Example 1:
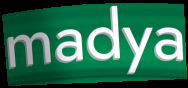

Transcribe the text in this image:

madya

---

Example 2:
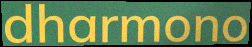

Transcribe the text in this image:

dharmono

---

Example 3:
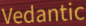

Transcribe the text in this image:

Vedantic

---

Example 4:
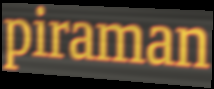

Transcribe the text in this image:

piraman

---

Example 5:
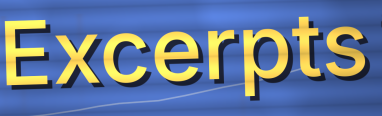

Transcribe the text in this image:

Excerpts